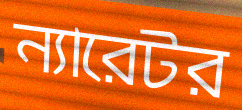
ন্যারেটর